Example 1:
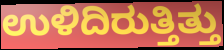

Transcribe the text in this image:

ಉಳಿದಿರುತ್ತಿತ್ತು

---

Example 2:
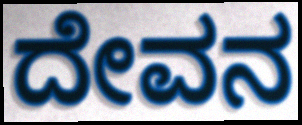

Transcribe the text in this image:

ದೇವನ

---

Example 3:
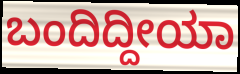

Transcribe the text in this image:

ಬಂದಿದ್ದೀಯಾ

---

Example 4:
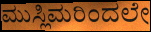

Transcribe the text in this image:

ಮುಸ್ಲಿಮರಿಂದಲೇ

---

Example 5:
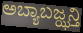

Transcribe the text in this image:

ಅಬ್ಯಾಬಜ್ಝನ್ತಿ